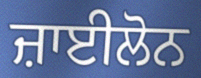
ਜ਼ਾਈਲੋਨ